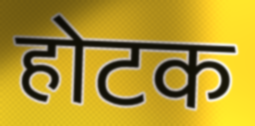
होटक